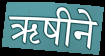
ऋषीने